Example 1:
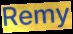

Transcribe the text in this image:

Remy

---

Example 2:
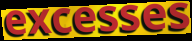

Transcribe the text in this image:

excesses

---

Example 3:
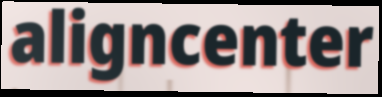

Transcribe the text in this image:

aligncenter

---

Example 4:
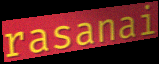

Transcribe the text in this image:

rasanai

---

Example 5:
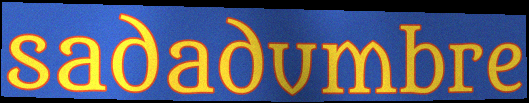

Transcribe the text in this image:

sadadumbre